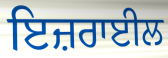
ਇਜ਼ਰਾਈਲ